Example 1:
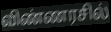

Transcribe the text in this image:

விண்ணரசில்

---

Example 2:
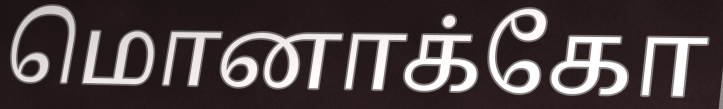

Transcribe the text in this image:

மொனாக்கோ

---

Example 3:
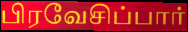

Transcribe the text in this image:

பிரவேசிப்பார்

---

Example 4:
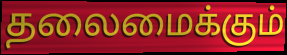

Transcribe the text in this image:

தலைமைக்கும்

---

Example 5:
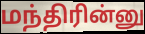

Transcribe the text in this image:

மந்திரின்னு